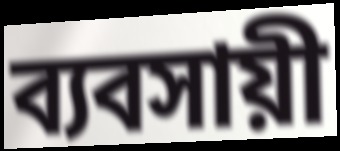
ব্যবসায়ী